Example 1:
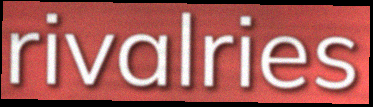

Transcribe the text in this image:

rivalries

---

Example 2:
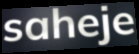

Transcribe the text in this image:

saheje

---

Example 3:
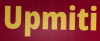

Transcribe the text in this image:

Upmiti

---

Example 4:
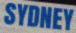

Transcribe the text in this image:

SYDNEY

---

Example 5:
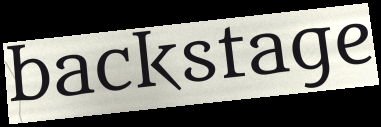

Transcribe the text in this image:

backstage